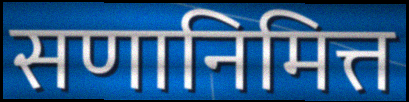
सणानिमित्त